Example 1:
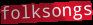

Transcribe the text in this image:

folksongs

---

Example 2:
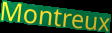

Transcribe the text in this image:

Montreux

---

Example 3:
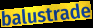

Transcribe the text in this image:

balustrade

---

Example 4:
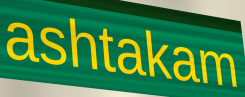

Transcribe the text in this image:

ashtakam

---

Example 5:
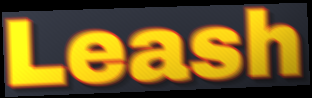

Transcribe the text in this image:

Leash